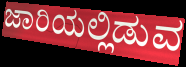
ಜಾರಿಯಲ್ಲಿಡುವ